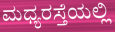
ಮಧ್ಯರಸ್ತೆಯಲ್ಲಿ